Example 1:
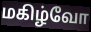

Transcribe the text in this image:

மகிழ்வோ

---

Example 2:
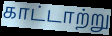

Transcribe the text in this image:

காட்டாற்று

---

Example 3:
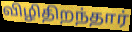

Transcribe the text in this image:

விழிதிறந்தார்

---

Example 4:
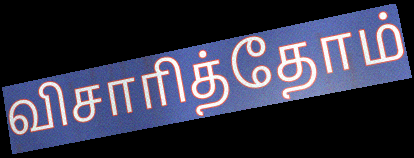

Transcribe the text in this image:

விசாரித்தோம்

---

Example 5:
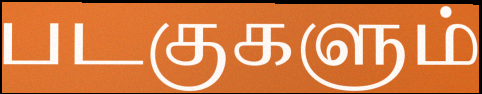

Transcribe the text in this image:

படகுகளும்